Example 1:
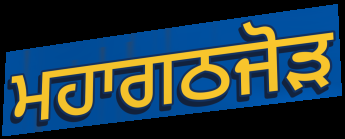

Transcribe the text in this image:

ਮਹਾਗਠਜੋੜ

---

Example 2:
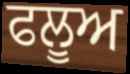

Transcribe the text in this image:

ਫਲੂਅ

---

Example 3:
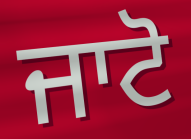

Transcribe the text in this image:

ਜਾਟੋ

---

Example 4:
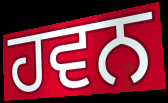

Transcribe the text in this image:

ਹਵਨ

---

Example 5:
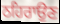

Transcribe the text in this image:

ਠਹਿਰਾਉਣ